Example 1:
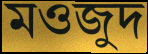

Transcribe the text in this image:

মওজুদ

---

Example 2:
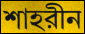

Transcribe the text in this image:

শাহরীন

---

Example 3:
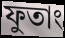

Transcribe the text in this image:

ফুতাং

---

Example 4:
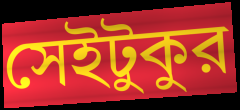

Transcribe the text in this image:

সেইটুকুর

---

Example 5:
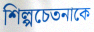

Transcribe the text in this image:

শিল্পচেতনাকে